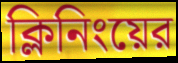
ক্লিনিংয়ের